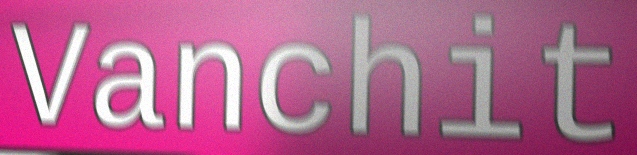
Vanchit